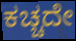
ಕಚ್ಚದೇ